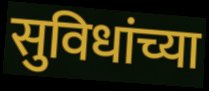
सुविधांच्या